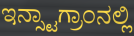
ಇನ್ಸ್ಟಾಗ್ರಾಂನಲ್ಲಿ